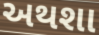
અથશા